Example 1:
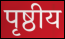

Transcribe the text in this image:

पृष्ठीय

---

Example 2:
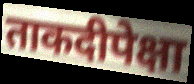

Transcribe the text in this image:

ताकदीपेक्षा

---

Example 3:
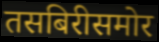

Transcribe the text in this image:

तसबिरीसमोर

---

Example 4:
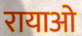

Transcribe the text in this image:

रायाओ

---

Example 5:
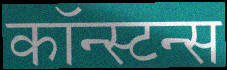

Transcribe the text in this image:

कॉन्स्टन्स